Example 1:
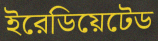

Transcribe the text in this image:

ইরেডিয়েটেড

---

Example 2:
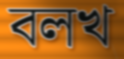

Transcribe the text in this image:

বলখ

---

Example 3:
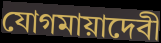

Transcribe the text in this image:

যোগমায়াদেবী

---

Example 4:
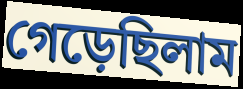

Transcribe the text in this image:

গেড়েছিলাম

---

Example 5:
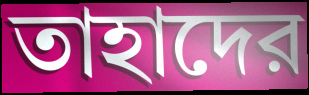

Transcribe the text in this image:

তাহাদের